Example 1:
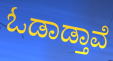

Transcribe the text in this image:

ಓಡಾಡ್ತಾವೆ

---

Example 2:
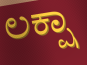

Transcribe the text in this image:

ಲಕ್ಷಾ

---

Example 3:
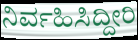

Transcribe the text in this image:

ನಿರ್ವಹಿಸಿದ್ದೀರಿ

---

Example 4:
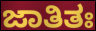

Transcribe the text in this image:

ಜಾತಿತಃ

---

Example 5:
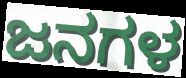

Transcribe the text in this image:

ಜನಗಳ